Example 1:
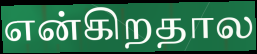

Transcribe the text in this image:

என்கிறதால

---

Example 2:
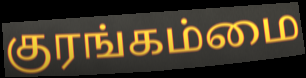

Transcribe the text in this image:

குரங்கம்மை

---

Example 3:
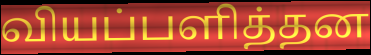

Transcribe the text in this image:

வியப்பளித்தன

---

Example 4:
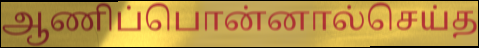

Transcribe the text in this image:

ஆணிப்பொன்னால்செய்த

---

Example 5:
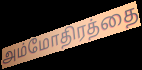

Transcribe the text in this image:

அம்மோதிரத்தை